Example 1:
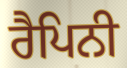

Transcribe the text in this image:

ਰੈਪਿਨੀ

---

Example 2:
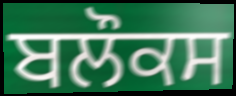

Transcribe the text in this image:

ਬਲੌਕਸ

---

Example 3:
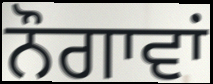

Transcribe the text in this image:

ਨੌਗਾਵਾਂ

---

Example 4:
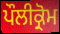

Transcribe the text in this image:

ਪੌਲੀਕ੍ਰੋਮ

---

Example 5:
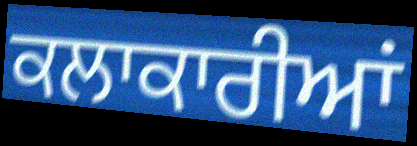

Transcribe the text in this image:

ਕਲਾਕਾਰੀਆਂ